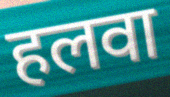
हलवा